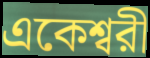
একেশ্বরী